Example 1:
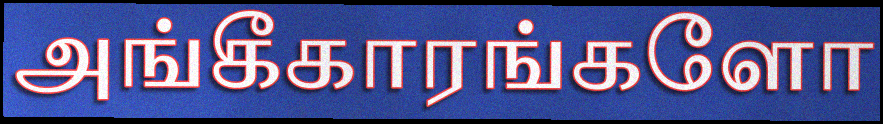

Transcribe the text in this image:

அங்கீகாரங்களோ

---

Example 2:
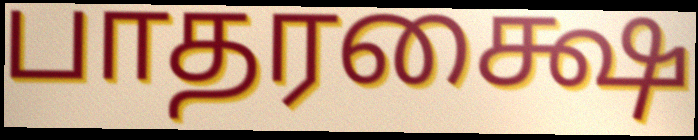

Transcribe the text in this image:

பாதரக்ஷை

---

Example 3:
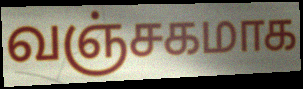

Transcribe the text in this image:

வஞ்சகமாக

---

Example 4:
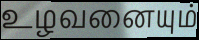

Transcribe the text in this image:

உழவனையும்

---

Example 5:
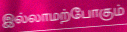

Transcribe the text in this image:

இல்லாமற்போகும்